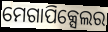
ମେଗାପିକ୍ସେଲର